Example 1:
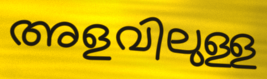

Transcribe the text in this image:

അളവിലുള്ള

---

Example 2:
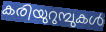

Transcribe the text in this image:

കരിയുറുമ്പുകൾ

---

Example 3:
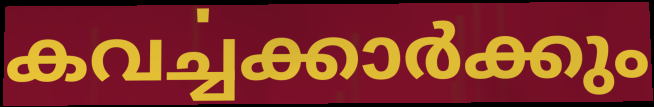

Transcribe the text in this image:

കവൎച്ചക്കാർക്കും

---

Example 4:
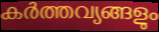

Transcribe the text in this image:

കർത്തവ്യങ്ങളും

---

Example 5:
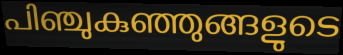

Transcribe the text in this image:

പിഞ്ചുകുഞ്ഞുങ്ങളുടെ